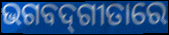
ଭଗବଦ୍‌ଗୀତାରେ